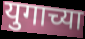
युगाच्या